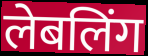
लेबलिंग